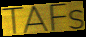
TAFs